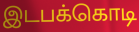
இடபக்கொடி